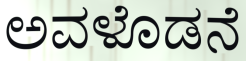
ಅವಳೊಡನೆ